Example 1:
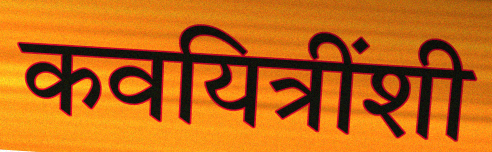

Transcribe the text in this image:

कवयित्रींशी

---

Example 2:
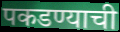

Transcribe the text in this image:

पकडण्याची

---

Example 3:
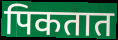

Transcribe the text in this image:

पिकतात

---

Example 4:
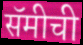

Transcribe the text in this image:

सॅमीची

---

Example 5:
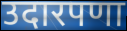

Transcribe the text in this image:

उदारपणा